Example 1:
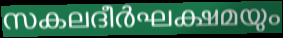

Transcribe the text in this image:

സകലദീർഘക്ഷമയും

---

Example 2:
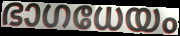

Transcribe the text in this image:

ഭാഗധേയം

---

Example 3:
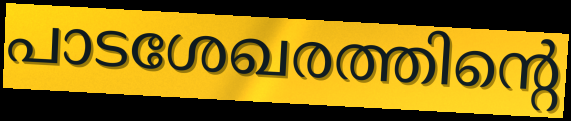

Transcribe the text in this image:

പാടശേഖരത്തിന്റെ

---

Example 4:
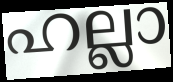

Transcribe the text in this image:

ഹല്ലാ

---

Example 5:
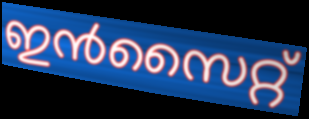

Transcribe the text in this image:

ഇൻസൈറ്റ്